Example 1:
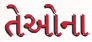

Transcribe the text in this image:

તેઓના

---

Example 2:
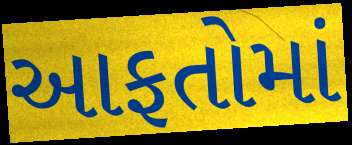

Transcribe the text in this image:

આફતોમાં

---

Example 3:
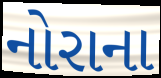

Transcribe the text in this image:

નોરાના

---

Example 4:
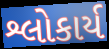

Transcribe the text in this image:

શ્લોકાર્ય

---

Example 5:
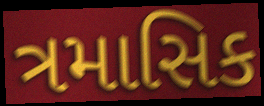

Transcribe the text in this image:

ત્રમાસિક